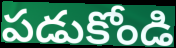
పడుకోండి